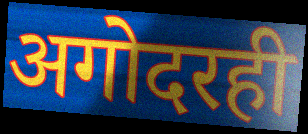
अगोदरही